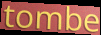
tombe